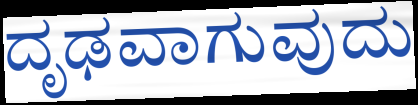
ದೃಢವಾಗುವುದು